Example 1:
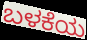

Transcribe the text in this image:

ಬಳಕೆಯ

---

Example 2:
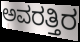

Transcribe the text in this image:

ಅವರತ್ತಿರ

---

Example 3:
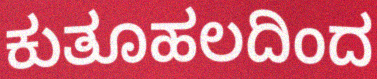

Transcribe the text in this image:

ಕುತೂಹಲದಿಂದ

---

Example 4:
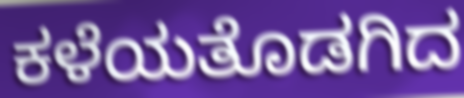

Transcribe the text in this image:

ಕಳೆಯತೊಡಗಿದ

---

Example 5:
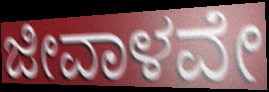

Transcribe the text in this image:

ಜೀವಾಳವೇ